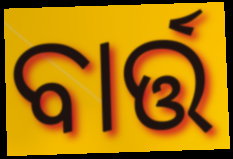
ବାର୍ତ୍ତ